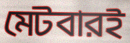
মেটবারই